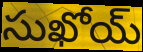
సుఖోయ్